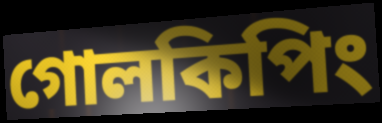
গোলকিপিং